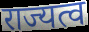
राज्यत्व